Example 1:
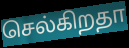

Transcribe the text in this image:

செல்கிறதா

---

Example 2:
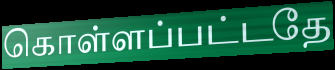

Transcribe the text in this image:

கொள்ளப்பட்டதே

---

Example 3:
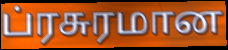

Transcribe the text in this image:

ப்ரசுரமான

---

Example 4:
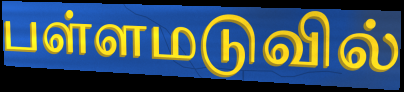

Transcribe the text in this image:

பள்ளமடுவில்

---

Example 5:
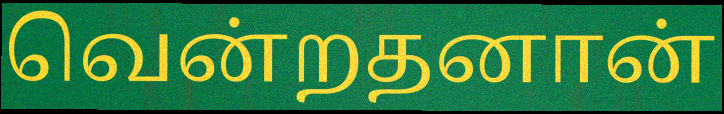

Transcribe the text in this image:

வென்றதனான்